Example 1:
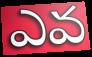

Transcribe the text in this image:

ఎవ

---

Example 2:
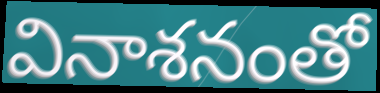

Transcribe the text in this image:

వినాశనంతో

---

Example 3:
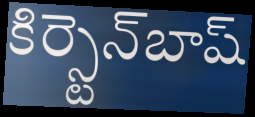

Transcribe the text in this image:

కిర్స్టెన్‌బాష్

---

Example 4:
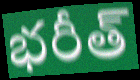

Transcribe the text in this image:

భరీత్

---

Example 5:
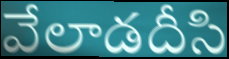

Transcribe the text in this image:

వేలాడదీసి